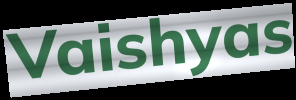
Vaishyas